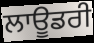
ਲਾਊਡਰੀ